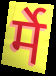
र्मे